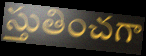
స్తుతించగా